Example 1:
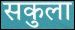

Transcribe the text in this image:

सकुला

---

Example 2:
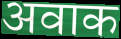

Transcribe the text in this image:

अवाक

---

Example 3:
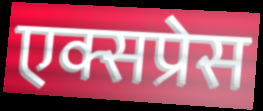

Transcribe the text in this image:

एक्सप्रेस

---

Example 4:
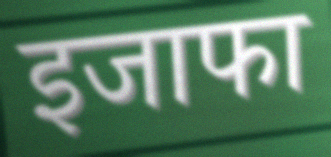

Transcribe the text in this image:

इजाफा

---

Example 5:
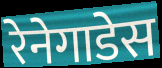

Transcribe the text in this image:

रेनेगाडेस